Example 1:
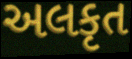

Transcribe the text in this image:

અલકૃત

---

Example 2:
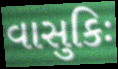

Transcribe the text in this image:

વાસુકિઃ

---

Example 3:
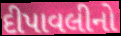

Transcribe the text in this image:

દીપાવલીનો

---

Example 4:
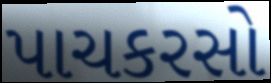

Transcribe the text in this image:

પાચકરસો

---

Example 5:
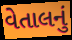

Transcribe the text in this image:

વેતાલનું